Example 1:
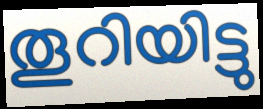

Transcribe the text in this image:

തൂറിയിട്ടു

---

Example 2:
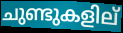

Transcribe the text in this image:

ചുണ്ടുകളില്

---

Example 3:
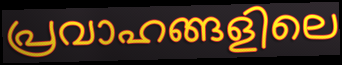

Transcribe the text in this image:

പ്രവാഹങ്ങളിലെ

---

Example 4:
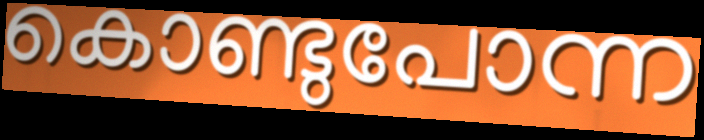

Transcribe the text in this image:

കൊണ്ടുപോന്ന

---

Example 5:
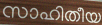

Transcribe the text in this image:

സാഹിതീയ